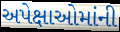
અપેક્ષાઓમાંની